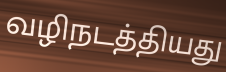
வழிநடத்தியது